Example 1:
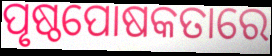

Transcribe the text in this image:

ପୃଷ୍ଠପୋଷକତାରେ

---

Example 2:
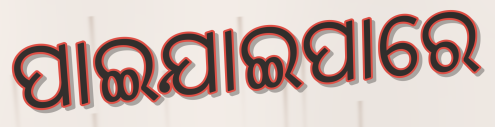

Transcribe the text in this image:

ପାଇଯାଇପାରେ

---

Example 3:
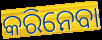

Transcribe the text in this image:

କରିନେବା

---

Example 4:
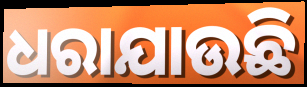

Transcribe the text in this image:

ଧରାଯାଉଛି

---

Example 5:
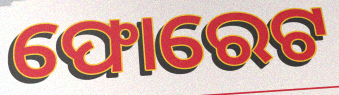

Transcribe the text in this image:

ଫୋରେଟ